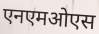
एनएमओएस